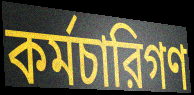
কর্মচারিগণ